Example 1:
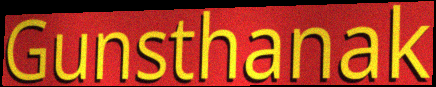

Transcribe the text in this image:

Gunsthanak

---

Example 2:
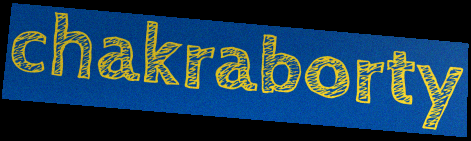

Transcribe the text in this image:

chakraborty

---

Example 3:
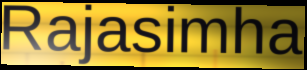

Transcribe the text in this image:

Rajasimha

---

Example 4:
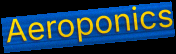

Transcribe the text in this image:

Aeroponics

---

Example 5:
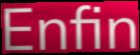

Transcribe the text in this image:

Enfin